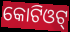
କୋଟିଓଟ୍